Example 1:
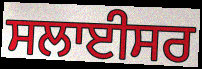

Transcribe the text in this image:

ਸਲਾਈਸਰ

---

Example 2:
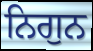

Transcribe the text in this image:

ਨਿਗੁਨ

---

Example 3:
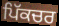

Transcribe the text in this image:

ਪਿੱਕਚਰ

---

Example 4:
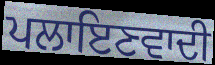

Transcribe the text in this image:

ਪਲਾਇਣਵਾਦੀ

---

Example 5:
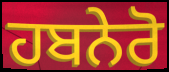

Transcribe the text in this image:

ਹਬਨੇਰੋ